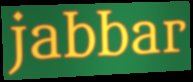
jabbar